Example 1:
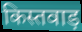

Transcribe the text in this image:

किस्तवाड़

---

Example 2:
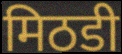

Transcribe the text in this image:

मिठडी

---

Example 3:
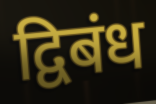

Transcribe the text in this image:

द्विबंध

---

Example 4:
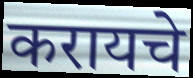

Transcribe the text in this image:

करायचे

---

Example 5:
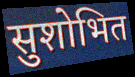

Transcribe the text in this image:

सुशोभित